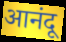
आनंदू